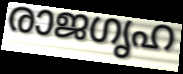
രാജഗൃഹ